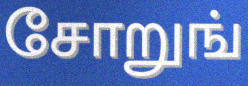
சோறுங்